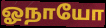
ஓநாயோ